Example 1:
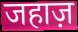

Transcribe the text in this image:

जहाज़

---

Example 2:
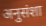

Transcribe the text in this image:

अनुसंशा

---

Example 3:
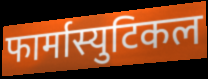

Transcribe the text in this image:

फार्मास्युटिकल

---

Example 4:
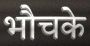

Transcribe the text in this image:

भौचके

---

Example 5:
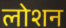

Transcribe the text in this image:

लोशन